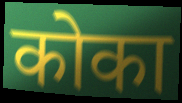
कोका